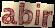
abir